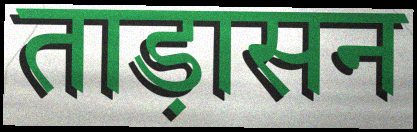
ताड़ासन